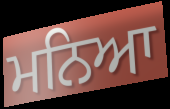
ਮਨਿਆ